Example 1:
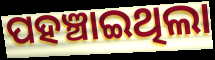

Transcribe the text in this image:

ପହଞ୍ଚାଇଥିଲା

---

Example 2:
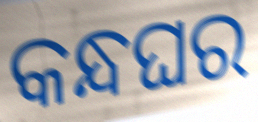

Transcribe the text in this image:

କନ୍ଧଘର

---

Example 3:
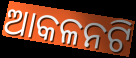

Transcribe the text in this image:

ଆକଳନଟି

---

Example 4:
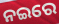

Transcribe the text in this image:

ନଇରେ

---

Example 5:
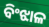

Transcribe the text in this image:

ବିଂଝାଳ